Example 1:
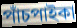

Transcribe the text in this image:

পাঁচপাইকা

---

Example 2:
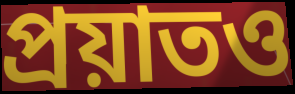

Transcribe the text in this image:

প্রয়াতও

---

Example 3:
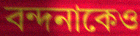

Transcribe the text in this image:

বন্দনাকেও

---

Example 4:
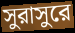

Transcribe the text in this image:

সুরাসুরে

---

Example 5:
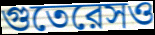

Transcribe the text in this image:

গুতেরেসও